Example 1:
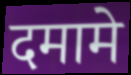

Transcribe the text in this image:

दमामे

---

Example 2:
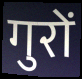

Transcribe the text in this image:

गुरों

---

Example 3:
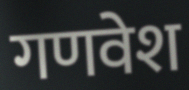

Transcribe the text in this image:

गणवेश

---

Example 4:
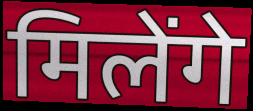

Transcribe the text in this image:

मिलेंगे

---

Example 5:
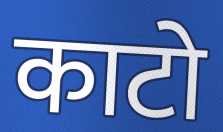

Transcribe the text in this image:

काटो